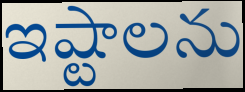
ఇష్టాలను